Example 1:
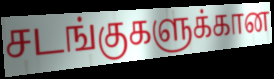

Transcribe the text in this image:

சடங்குகளுக்கான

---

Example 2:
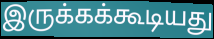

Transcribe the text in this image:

இருக்கக்கூடியது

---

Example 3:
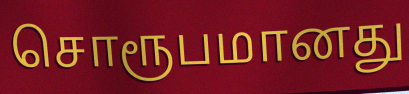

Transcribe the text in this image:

சொரூபமானது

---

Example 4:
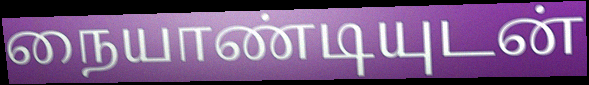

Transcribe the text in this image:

நையாண்டியுடன்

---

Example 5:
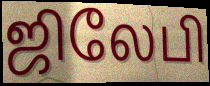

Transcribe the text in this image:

ஜிலேபி